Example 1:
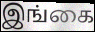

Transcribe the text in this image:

இங்கை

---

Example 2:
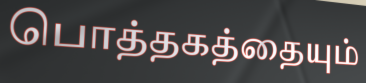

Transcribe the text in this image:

பொத்தகத்தையும்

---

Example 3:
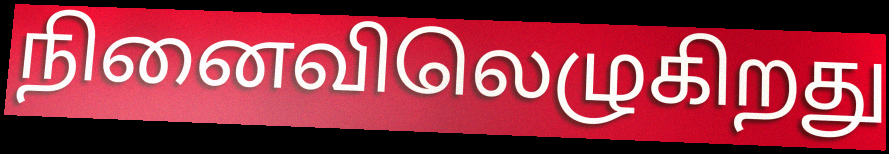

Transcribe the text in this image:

நினைவிலெழுகிறது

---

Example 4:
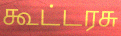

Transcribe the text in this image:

கூட்டரசு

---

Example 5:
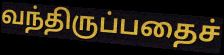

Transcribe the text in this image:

வந்திருப்பதைச்